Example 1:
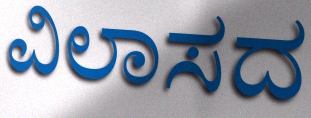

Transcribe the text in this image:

ವಿಲಾಸದ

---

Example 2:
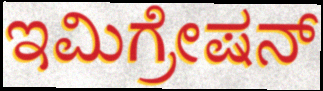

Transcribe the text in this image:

ಇಮಿಗ್ರೇಷನ್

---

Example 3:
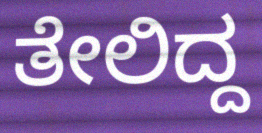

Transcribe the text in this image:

ತೇಲಿದ್ದ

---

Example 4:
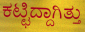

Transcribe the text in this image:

ಕಟ್ಟಿದ್ದಾಗಿತ್ತು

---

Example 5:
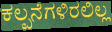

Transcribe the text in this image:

ಕಲ್ಪನೆಗಳಿರಲಿಲ್ಲ